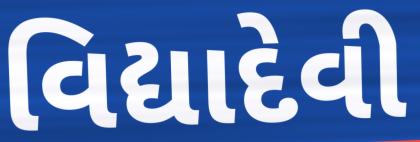
વિદ્યાદેવી